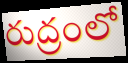
రుద్రంలో